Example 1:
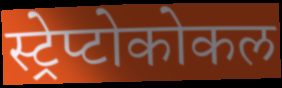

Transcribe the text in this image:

स्ट्रेप्टोकोकल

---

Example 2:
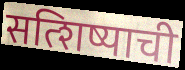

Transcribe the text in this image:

सत्शिष्याची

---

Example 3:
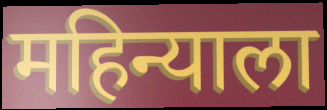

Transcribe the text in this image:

महिन्याला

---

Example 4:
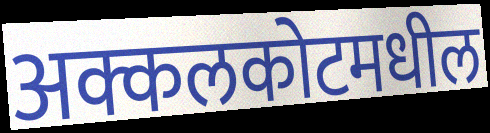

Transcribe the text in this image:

अक्कलकोटमधील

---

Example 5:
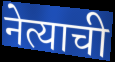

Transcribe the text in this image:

नेत्याची